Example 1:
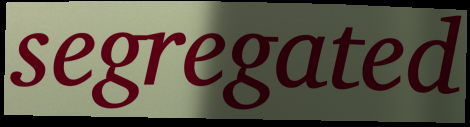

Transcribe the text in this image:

segregated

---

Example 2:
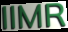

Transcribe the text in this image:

IIMR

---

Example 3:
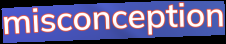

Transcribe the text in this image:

misconception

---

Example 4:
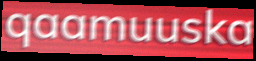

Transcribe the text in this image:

qaamuuska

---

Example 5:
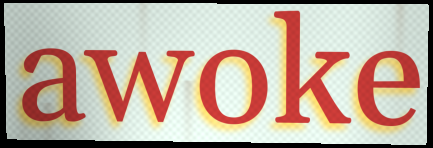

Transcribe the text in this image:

awoke